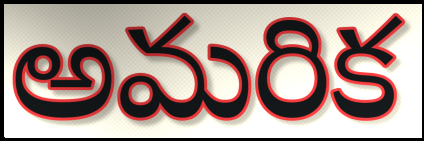
అమరిక